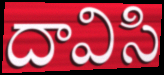
దావిసి